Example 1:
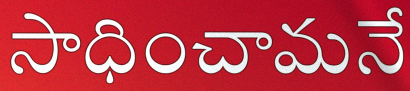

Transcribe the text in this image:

సాధించామనే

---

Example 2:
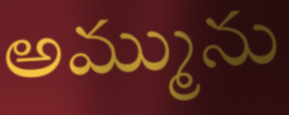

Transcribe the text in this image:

అమ్మును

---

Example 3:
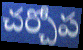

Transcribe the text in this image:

చర్చోప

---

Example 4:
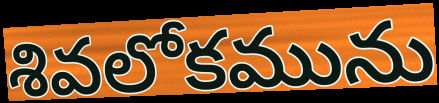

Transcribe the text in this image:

శివలోకమును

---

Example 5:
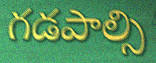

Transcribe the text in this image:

గడపాల్సి